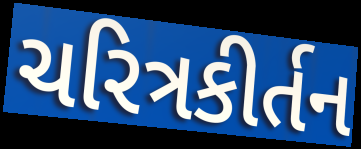
ચરિત્રકીર્તન